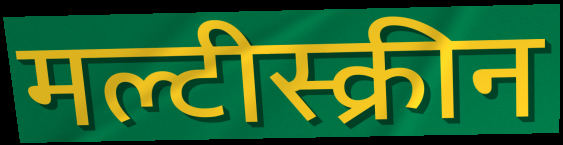
मल्टीस्क्रीन